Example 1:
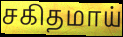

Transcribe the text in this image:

சகிதமாய்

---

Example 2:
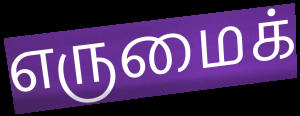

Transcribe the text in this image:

எருமைக்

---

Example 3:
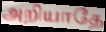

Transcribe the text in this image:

அறியாதே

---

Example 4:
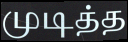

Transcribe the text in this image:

முடித்த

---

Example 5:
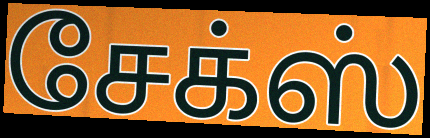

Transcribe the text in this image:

சேக்ஸ்